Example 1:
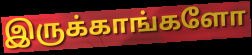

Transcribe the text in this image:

இருக்காங்களோ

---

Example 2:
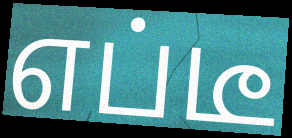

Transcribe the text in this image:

எப்டீ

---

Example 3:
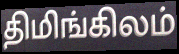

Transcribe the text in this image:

திமிங்கிலம்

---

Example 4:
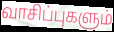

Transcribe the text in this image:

வாசிப்புகளும்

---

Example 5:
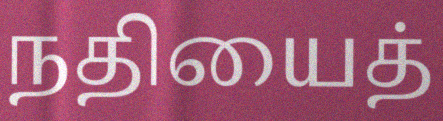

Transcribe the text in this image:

நதியைத்